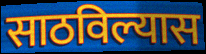
साठविल्यास